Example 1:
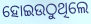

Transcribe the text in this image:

ହୋଇଉଠୁଥିଲେ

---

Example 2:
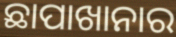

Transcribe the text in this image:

ଛାପାଖାନାର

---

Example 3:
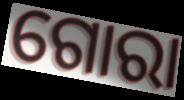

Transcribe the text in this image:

ଗୋରା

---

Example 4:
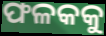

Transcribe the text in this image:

ଫଳକକୁ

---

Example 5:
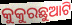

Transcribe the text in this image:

କୁକୁରଛୁଆଟି